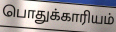
பொதுக்காரியம்